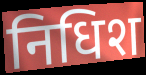
निधिश